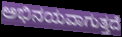
ಅಭಿನಯವಾಗುತ್ತದೆ